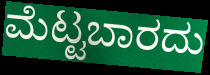
ಮೆಟ್ಟಬಾರದು